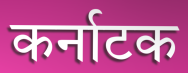
कर्नाटक